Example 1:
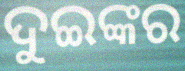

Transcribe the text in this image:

ଦୁଇଙ୍କର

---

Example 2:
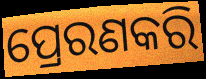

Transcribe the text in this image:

ପ୍ରେରଣକରି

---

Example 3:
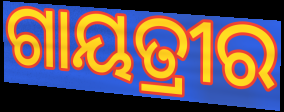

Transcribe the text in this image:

ଗାୟତ୍ରୀର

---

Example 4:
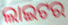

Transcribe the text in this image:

ଲାଇଟର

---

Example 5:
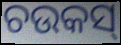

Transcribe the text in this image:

ଚଉକସ୍